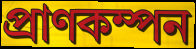
প্রাণকম্পন